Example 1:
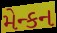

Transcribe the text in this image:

મેન્કન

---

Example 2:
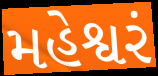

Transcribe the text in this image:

મહેશ્વરં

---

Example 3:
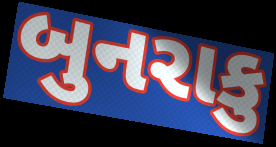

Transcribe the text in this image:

બુનરાકુ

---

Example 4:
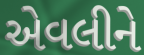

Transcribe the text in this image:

એવલીને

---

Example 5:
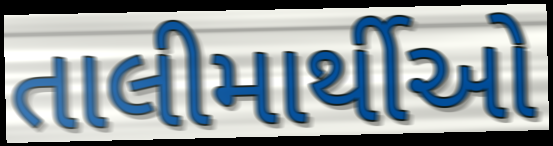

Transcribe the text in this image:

તાલીમાર્થીઓ